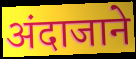
अंदाजाने